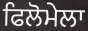
ਫਿਲੋਮੇਲਾ